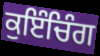
ਕੁਇੰਚਿੰਗ